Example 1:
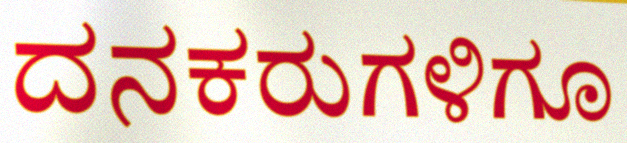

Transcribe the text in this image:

ದನಕರುಗಳಿಗೂ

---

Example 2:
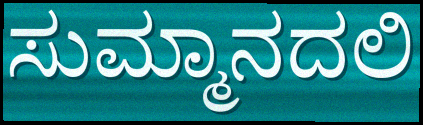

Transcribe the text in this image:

ಸುಮ್ಮಾನದಲಿ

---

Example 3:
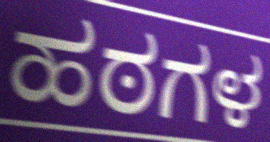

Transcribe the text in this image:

ಹಠಗಳ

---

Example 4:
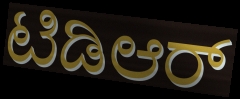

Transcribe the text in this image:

ಟಿಡಿಆರ್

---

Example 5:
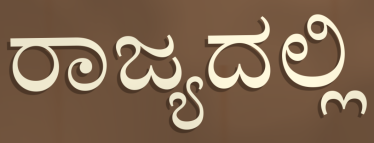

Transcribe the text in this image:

ರಾಜ್ಯದಲ್ಲಿ